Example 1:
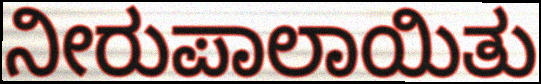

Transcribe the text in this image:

ನೀರುಪಾಲಾಯಿತು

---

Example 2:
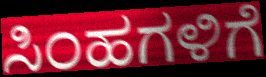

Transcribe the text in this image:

ಸಿಂಹಗಳಿಗೆ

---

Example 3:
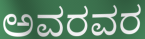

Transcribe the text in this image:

ಅವರವರ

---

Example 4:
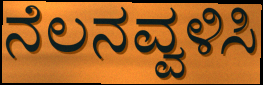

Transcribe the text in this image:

ನೆಲನವ್ವಳಿಸಿ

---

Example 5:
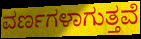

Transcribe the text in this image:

ವರ್ಣಗಳಾಗುತ್ತವೆ